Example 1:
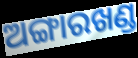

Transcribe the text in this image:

ଅଙ୍ଗାରଖଣ୍ଡ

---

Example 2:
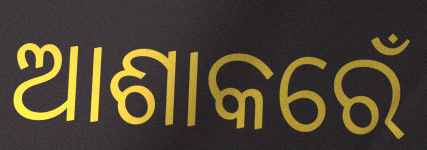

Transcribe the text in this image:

ଆଶାକରେଁ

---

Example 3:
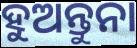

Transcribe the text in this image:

ହୁଅନ୍ତୁନା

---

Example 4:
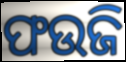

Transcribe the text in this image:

ଫଉଜି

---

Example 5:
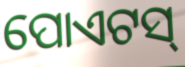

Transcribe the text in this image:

ପୋଏଟସ୍